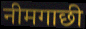
नीमगाछी